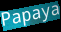
Papaya